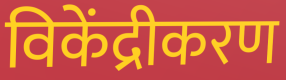
विकेंद्रीकरण